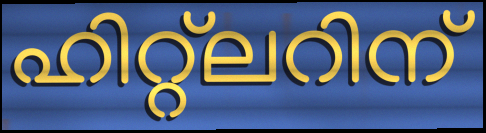
ഹിറ്റ്ലറിന്